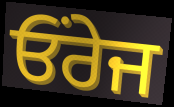
ਓਂਰੇਜ